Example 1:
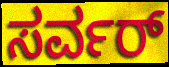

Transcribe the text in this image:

ಸರ್ವರ್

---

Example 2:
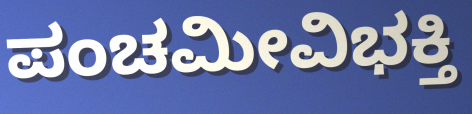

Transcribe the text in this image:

ಪಂಚಮೀವಿಭಕ್ತಿ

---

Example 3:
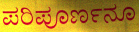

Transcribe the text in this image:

ಪರಿಪೂರ್ಣನೂ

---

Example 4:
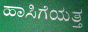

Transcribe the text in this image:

ಹಾಸಿಗೆಯತ್ತ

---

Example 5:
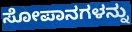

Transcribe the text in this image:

ಸೋಪಾನಗಳನ್ನು